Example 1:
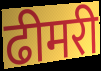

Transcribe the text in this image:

ढीमरी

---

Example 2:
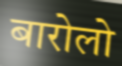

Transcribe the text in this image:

बारोलो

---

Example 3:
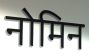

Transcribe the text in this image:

नोमिन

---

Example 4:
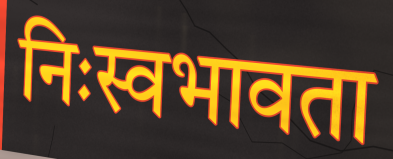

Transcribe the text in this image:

निःस्वभावता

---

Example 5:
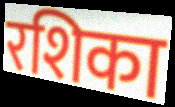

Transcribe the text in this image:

रशिका